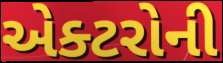
એક્ટરોની